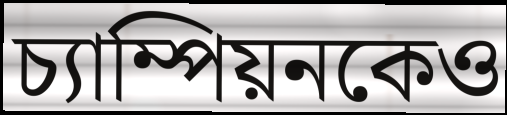
চ্যাম্পিয়নকেও